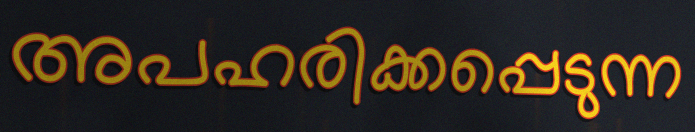
അപഹരിക്കപ്പെടുന്ന